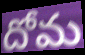
దోమ